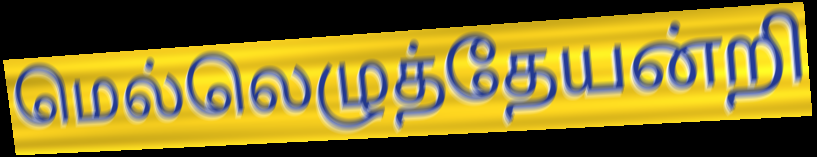
மெல்லெழுத்தேயன்றி